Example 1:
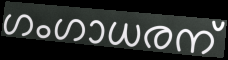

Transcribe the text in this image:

ഗംഗാധരന്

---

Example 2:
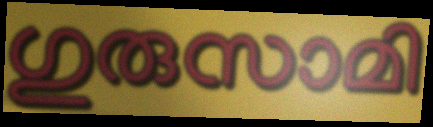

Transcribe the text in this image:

ഗുരുസാമി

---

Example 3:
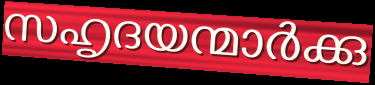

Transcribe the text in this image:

സഹൃദയന്മാർക്കു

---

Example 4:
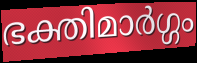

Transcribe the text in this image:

ഭക്തിമാർഗ്ഗം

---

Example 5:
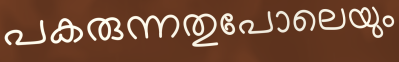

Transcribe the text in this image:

പകരുന്നതുപോലെയും